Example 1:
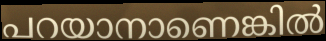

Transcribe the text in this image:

പറയാനാണെങ്കിൽ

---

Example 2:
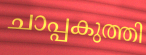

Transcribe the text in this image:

ചാപ്പകുത്തി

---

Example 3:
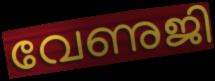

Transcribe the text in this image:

വേണുജി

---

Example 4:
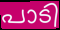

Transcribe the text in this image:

പാടി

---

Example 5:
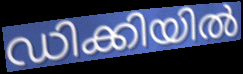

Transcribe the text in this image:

ഡിക്കിയിൽ